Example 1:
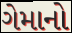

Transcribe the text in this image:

ગેમાનો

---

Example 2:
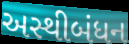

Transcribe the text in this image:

અસ્થીબંધન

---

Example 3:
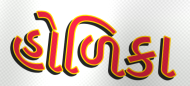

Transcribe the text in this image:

હોળિકા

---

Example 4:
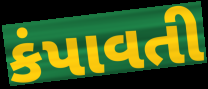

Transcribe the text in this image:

કંપાવતી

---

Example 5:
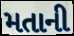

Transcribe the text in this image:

મતાની